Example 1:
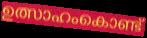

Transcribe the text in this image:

ഉത്സാഹംകൊണ്ട്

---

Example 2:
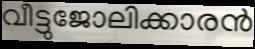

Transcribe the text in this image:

വീട്ടുജോലിക്കാരൻ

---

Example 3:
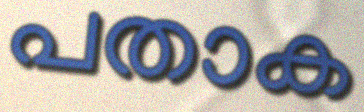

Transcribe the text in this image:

പതാക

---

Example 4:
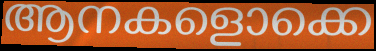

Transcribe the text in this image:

ആനകളൊക്കെ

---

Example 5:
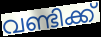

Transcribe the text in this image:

വണ്ടിക്ക്